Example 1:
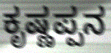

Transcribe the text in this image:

ಕೃಷ್ಣಪ್ಪನ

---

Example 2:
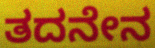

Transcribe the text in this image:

ತದನೇನ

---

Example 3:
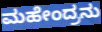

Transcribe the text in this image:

ಮಹೇಂದ್ರನು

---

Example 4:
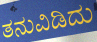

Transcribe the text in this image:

ತನುವಿಡಿದು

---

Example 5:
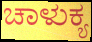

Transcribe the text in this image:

ಚಾಳುಕ್ಯ